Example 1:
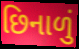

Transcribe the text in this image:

છિનાળું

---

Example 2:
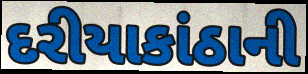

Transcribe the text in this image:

દરીયાકાંઠાની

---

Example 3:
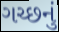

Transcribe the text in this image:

ગચ્છનું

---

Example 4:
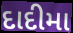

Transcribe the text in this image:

દાદીમા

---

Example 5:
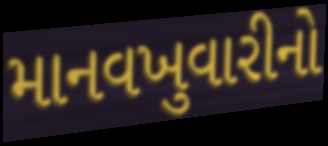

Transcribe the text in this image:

માનવખુવારીનો